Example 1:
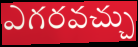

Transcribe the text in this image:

ఎగరవచ్చు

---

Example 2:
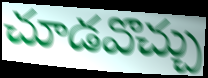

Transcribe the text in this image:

చూడవొచ్చు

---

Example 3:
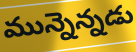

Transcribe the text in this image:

మున్నెన్నడు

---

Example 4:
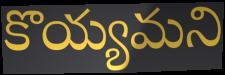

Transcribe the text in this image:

కొయ్యమని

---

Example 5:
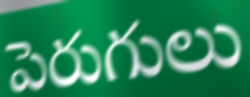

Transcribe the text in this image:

పెరుగులు